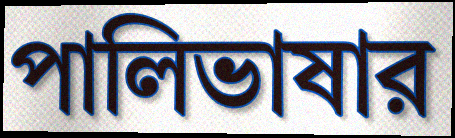
পালিভাষার